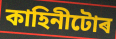
কাহিনীটোৰ